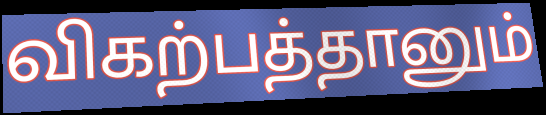
விகற்பத்தானும்